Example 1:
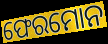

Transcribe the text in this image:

ଫେରମୋନ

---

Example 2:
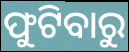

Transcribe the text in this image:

ଫୁଟିବାରୁ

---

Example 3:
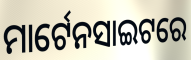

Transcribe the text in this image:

ମାର୍ଟେନସାଇଟରେ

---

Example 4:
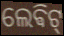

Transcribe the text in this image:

ଲେଵିଟ୍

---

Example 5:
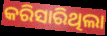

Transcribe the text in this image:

କରିସାରିଥିଲା